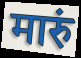
मारुं